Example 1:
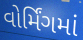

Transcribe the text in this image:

વોર્મિંગમાં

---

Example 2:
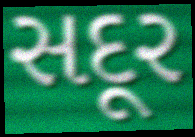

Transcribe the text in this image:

સદૂર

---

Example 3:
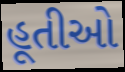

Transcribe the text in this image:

હૂતીઓ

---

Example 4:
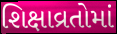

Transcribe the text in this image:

શિક્ષાવ્રતોમાં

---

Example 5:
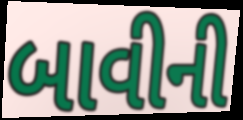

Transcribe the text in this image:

બાવીની